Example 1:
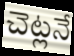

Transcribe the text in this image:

చెట్లనే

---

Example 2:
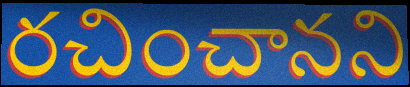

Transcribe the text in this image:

రచించానని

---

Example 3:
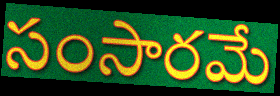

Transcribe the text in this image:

సంసారమే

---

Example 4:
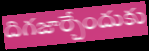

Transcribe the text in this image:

దిగజార్చేందుకు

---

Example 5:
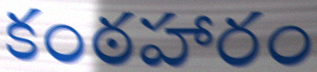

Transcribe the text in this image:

కంఠహారం